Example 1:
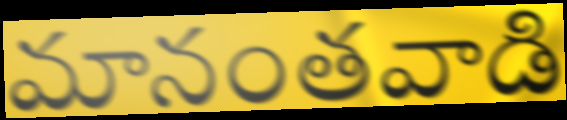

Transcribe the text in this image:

మానంతవాడి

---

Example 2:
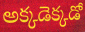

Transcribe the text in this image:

అక్కడెక్కడో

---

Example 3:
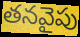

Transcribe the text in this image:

తనవైపు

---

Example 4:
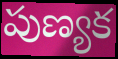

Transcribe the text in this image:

పుణ్యక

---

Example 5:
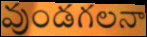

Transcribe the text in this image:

వుండగలనా